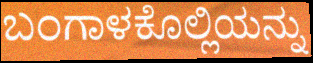
ಬಂಗಾಳಕೊಲ್ಲಿಯನ್ನು